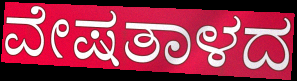
ವೇಷತಾಳದ